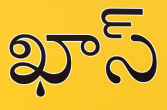
ఖాస్